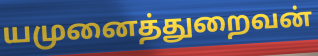
யமுனைத்துறைவன்